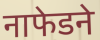
नाफेडने